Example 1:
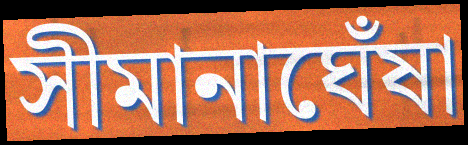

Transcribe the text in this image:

সীমানাঘেঁষা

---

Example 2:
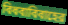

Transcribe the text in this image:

বিধবাবিবাহের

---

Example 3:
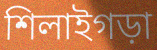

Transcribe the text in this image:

শিলাইগড়া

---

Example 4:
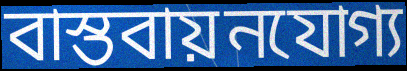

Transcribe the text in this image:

বাস্তবায়নযোগ্য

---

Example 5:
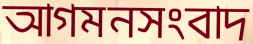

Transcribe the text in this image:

আগমনসংবাদ